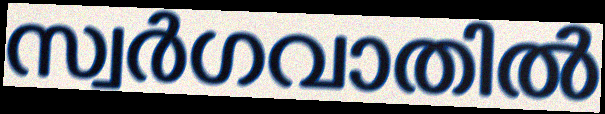
സ്വർഗവാതിൽ